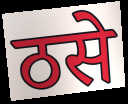
ठसे